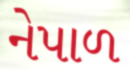
નેપાળ